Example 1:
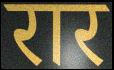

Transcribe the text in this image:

रार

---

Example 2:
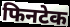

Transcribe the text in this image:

फिनटेक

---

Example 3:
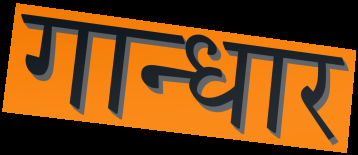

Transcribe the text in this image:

गान्धार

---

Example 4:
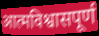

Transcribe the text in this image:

आत्मविश्वासपूर्ण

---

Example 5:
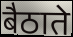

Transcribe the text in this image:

बैठाते